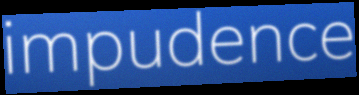
impudence